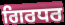
ਗਿਰਧਰ